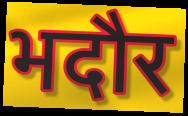
भदौर